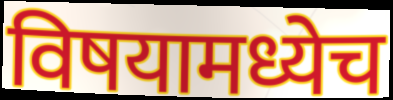
विषयामध्येच